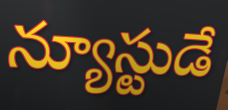
న్యూస్టుడే